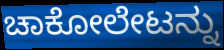
ಚಾಕೋಲೇಟನ್ನು